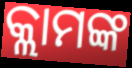
କ୍ଲାମଙ୍କ